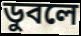
ডুবলে